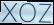
XOZ